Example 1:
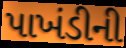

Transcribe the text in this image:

પાખંડીની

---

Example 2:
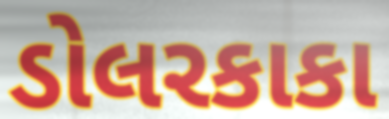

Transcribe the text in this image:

ડોલરકાકા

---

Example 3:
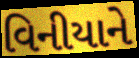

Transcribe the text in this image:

વિનીયાને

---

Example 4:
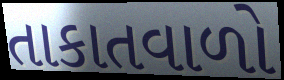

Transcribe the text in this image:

તાકાતવાળો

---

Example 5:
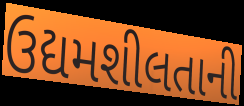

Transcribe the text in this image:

ઉદ્યમશીલતાની